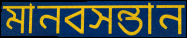
মানবসন্তান